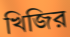
খিজির